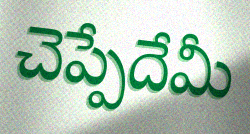
చెప్పేదేమీ